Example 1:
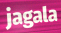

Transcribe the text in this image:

jagala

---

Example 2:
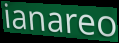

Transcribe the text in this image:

ianareo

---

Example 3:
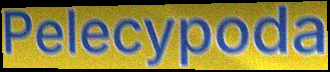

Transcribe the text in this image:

Pelecypoda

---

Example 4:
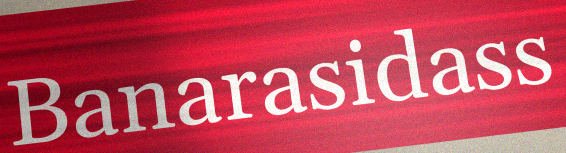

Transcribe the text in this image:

Banarasidass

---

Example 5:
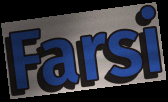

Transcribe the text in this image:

Farsi